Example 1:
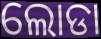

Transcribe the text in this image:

ଲୋଡା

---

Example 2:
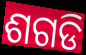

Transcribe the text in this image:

ଶଗଡି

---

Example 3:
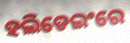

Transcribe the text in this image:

ହଲିଡେଇଂରେ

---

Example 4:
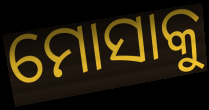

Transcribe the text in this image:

ମୋସାକୁ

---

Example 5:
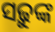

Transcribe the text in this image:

ସଢ଼ୁଙ୍କ